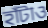
হাঁটাও